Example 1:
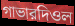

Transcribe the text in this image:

গাভারদিওল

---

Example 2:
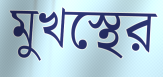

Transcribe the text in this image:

মুখস্থের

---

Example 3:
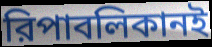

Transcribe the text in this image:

রিপাবলিকানই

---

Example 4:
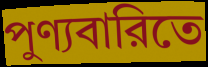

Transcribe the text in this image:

পুণ্যবারিতে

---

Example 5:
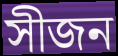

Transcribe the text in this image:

সীজন